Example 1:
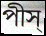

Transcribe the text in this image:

পীস্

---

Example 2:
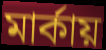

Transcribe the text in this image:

মার্কায়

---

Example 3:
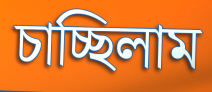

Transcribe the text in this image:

চাচ্ছিলাম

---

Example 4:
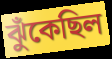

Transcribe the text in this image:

ঝুঁকেছিল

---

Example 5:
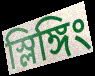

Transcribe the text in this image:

স্লিঙ্গিং